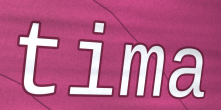
tima